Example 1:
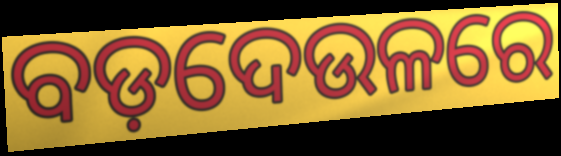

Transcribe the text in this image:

ବଡ଼ଦେଉଳରେ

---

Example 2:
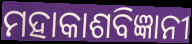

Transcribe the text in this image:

ମହାକାଶବିଜ୍ଞାନୀ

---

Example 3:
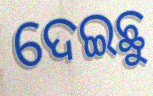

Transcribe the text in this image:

ଦେଇଛୁ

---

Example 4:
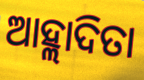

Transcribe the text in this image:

ଆହ୍ଲାଦିତା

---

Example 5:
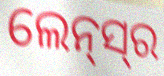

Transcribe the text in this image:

ଲେନ୍‌ସ୍‍ର